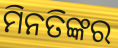
ମିନତିଙ୍କର